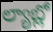
ల్యాబ్లో